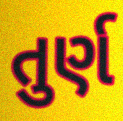
તુર્ણ